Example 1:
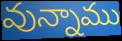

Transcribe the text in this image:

వున్నాము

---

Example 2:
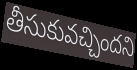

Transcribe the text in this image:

తీసుకువచ్చిందని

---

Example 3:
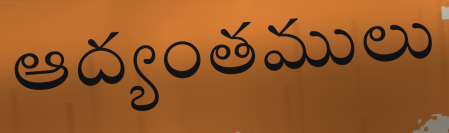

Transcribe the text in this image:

ఆద్యంతములు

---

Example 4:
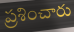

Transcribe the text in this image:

ప్రశించారు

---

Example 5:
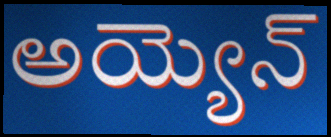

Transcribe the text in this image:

అయ్యెన్